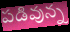
పడివున్న